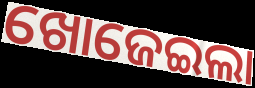
ଖୋଜେଇଲା